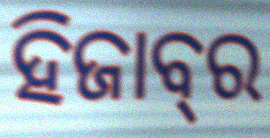
ହିଜାବ୍‌ର